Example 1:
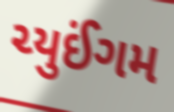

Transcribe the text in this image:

ચ્યુઈંગમ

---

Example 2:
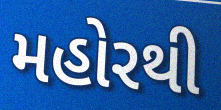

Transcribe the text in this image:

મહોરથી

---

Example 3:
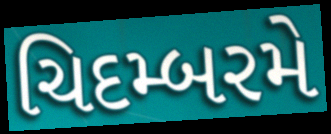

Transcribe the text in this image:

ચિદમ્બરમે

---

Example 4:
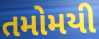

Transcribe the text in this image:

તમોમયી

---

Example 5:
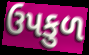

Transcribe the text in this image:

ઉપકુળ